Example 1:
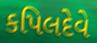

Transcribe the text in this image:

કપિલદેવે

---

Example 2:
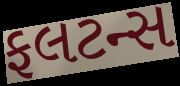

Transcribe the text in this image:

ફલટન્સ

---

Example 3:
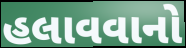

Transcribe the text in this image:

હલાવવાનો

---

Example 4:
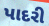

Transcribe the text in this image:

પાદરી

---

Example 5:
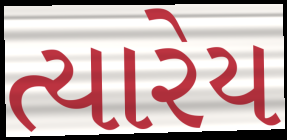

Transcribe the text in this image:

ત્યારેય